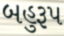
બહુરૂપ